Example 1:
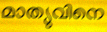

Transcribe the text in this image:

മാത്യുവിനെ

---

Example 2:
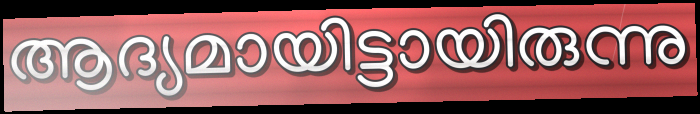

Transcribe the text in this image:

ആദ്യമായിട്ടായിരുന്നു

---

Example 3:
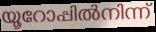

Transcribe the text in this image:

യൂറോപ്പിൽനിന്ന്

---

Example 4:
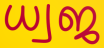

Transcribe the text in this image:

ധ്വജ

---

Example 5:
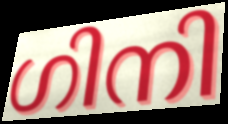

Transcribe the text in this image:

ഗിനി